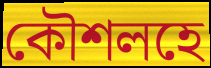
কৌশলহে